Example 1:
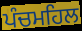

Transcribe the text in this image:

ਪੰਚਮਹਿਲ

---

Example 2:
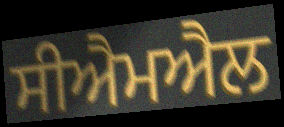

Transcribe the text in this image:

ਸੀਐਮਐਲ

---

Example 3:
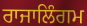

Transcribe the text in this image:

ਰਾਜਾਲਿੰਗਮ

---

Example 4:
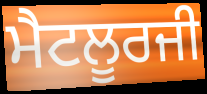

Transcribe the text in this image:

ਮੈਟਲੂਰਜੀ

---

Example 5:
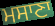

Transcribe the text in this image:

ਮਸਾਣਾ